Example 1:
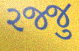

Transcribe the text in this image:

રજ્જુ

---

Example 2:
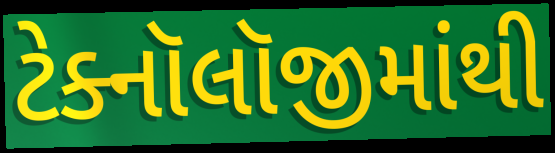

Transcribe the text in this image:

ટેક્નૉલૉજીમાંથી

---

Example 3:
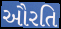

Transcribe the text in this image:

ઔરતિ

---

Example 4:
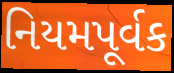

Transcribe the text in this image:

નિયમપૂર્વક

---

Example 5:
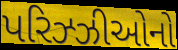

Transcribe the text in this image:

પરિઝ્ઝીઓનો